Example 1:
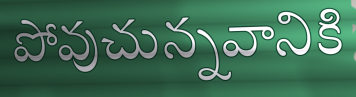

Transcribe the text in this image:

పోవుచున్నవానికి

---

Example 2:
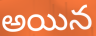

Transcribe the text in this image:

అయిన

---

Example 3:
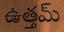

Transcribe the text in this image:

ఉత్తమ్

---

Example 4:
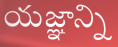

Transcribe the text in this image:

యజ్ఞాన్ని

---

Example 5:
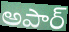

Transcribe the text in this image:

అపార్